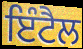
ਇੰਟੈਲ